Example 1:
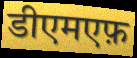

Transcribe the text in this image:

डीएमएफ़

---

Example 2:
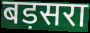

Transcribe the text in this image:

बड़सरा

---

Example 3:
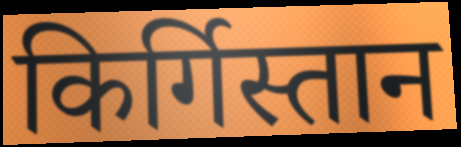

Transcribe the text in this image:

किर्गिस्तान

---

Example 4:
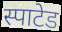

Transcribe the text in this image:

स्पाटेड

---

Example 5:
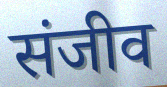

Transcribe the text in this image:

संजीव